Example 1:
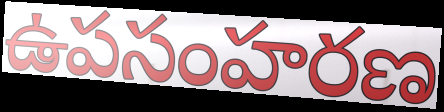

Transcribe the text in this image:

ఉపసంహరణ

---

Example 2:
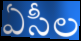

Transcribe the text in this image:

ఏసీల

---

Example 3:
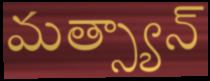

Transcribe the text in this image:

మత్స్యాన్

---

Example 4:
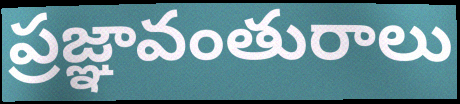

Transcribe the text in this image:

ప్రజ్ఞావంతురాలు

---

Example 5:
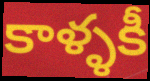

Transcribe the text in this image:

కాళ్ళకీ